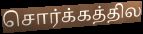
சொர்க்கத்தில